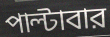
পাল্টাবার